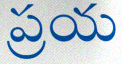
ప్రయ